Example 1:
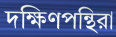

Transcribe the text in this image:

দক্ষিণপন্থিরা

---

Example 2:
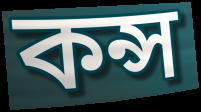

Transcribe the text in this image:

কন্স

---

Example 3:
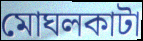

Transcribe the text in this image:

মোঘলকাটা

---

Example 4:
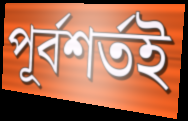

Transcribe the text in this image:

পূর্বশর্তই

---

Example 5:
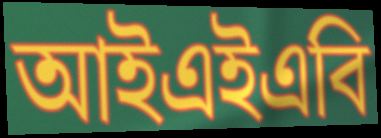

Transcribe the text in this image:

আইএইএবি